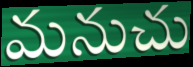
మనుచు